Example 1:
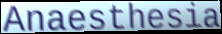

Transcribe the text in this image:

Anaesthesia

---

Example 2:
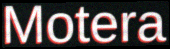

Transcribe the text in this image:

Motera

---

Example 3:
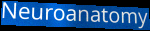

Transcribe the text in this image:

Neuroanatomy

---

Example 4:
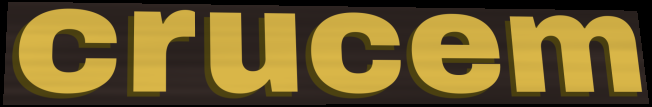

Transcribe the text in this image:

crucem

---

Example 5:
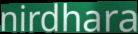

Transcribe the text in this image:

nirdhara